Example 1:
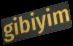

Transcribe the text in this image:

gibiyim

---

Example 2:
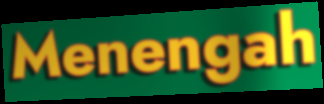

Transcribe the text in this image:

Menengah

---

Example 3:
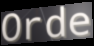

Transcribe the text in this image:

Orde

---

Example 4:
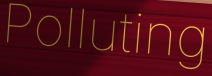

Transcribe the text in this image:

Polluting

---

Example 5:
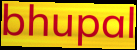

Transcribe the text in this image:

bhupal